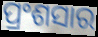
ପ୍ରଂଶସାର